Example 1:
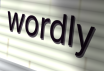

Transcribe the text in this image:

wordly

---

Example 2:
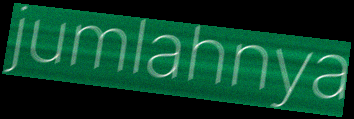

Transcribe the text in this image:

jumlahnya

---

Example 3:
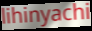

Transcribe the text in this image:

lihinyachi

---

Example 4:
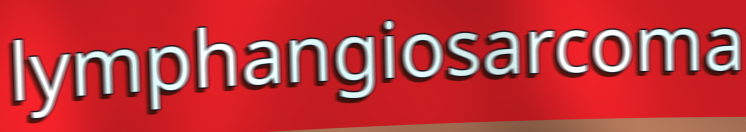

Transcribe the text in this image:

lymphangiosarcoma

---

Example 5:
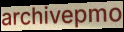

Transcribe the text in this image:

archivepmo